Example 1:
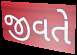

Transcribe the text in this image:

જીવતે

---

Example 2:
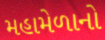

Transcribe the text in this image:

મહામેળાનો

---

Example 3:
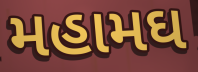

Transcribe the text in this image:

મહામઘ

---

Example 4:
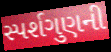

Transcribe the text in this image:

સ્પર્શગુણની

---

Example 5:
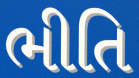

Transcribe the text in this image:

ભીતિ